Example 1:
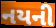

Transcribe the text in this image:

નયની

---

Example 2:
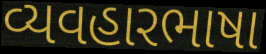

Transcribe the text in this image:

વ્યવહારભાષા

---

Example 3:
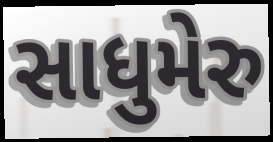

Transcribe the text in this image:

સાધુમેરુ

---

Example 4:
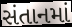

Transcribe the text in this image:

સંતાનમાં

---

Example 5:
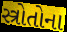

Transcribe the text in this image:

સ્ત્રોતોના